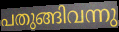
പതുങ്ങിവന്നു